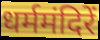
धर्ममंदिरें